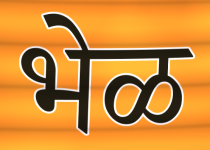
भेळ